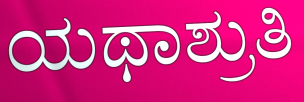
ಯಥಾಶ್ರುತಿ